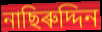
নাছিৰুদ্দিন